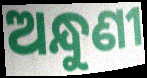
ଅନ୍ଧୁଣୀ